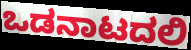
ಒಡನಾಟದಲಿ